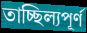
তাচ্ছিল্যপূর্ণ